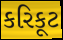
કરિકૂટ